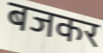
बजकर